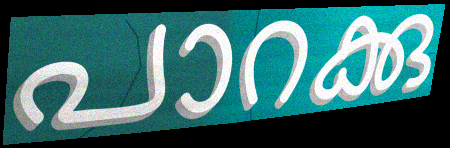
പാറക്കു